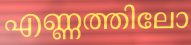
എണ്ണത്തിലോ